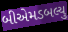
બીએમડબલ્યુ